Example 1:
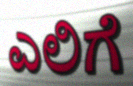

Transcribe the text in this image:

ಎಲಿಗೆ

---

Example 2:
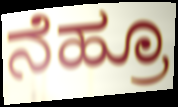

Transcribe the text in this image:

ನೆಹ್ರೂ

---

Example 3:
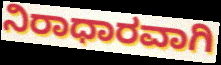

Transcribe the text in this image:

ನಿರಾಧಾರವಾಗಿ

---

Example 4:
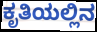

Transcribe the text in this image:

ಕೃತಿಯಲ್ಲಿನ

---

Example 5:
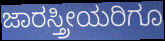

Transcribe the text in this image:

ಜಾರಸ್ತ್ರೀಯರಿಗೂ